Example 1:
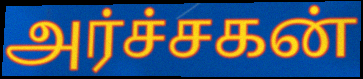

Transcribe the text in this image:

அர்ச்சகன்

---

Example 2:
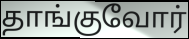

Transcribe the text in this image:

தாங்குவோர்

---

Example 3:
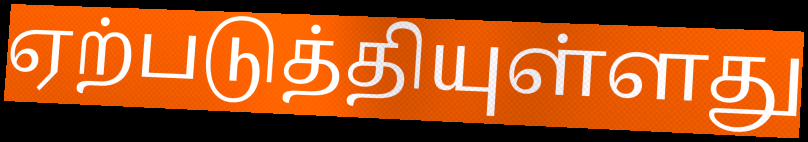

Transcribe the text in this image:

ஏற்படுத்தியுள்ளது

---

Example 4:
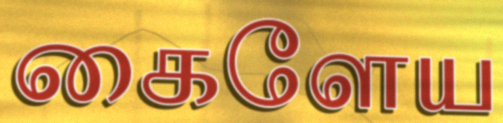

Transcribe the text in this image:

கைளேய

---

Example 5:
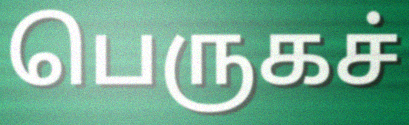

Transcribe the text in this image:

பெருகச்